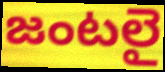
జంటలై